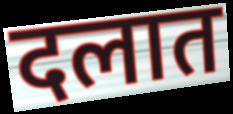
दलात